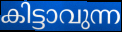
കിട്ടാവുന്ന